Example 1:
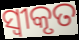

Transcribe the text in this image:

ସ୍ବୀକୃତ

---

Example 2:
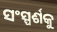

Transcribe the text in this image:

ସଂସ୍ପର୍ଶକୁ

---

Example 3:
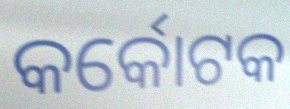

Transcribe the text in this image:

କର୍କୋଟକ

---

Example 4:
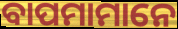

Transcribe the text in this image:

ବାପମାମାନେ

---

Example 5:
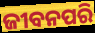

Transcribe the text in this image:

ଜୀବନପରି